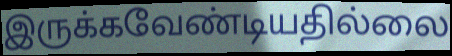
இருக்கவேண்டியதில்லை